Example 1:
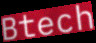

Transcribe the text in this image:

Btech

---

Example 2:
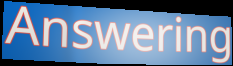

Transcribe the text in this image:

Answering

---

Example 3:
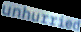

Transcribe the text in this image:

unhurried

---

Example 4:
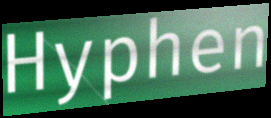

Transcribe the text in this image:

Hyphen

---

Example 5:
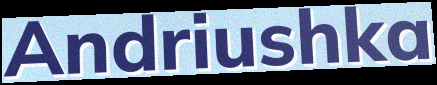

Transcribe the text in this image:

Andriushka